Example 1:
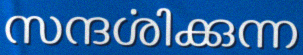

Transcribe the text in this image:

സന്ദൎശിക്കുന്ന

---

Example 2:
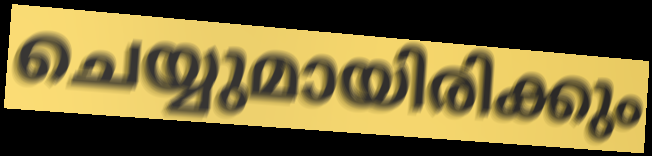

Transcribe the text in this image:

ചെയ്യുമായിരിക്കും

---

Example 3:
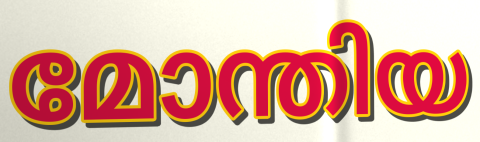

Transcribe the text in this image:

മോന്തിയ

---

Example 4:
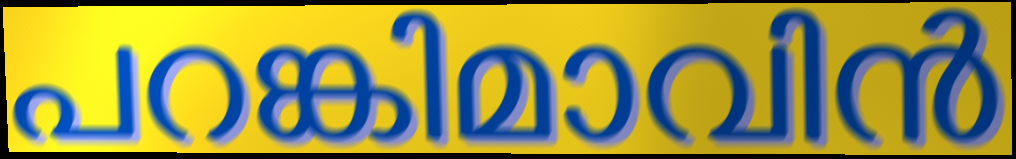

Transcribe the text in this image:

പറങ്കിമാവിൻ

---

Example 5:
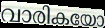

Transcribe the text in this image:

വാരികയോ